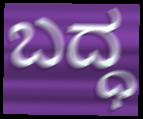
ಬದ್ಧ